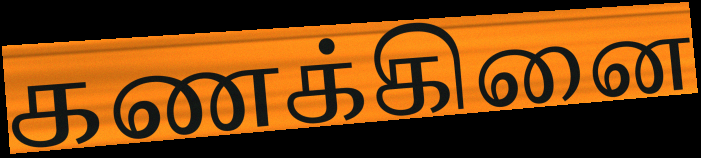
கணக்கினை